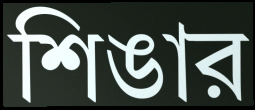
শিঙার